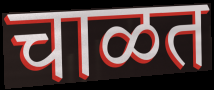
चाळत